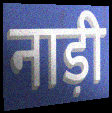
नाड़ी